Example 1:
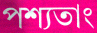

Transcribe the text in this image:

পশ্যতাং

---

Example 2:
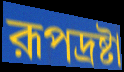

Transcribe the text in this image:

রূপদ্রষ্টা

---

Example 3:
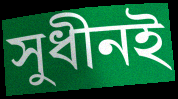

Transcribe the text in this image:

সুধীনই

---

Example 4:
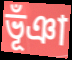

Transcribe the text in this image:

ভূঁঞা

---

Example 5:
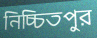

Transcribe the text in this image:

নিচ্চিতপুর